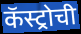
कॅस्ट्रोची